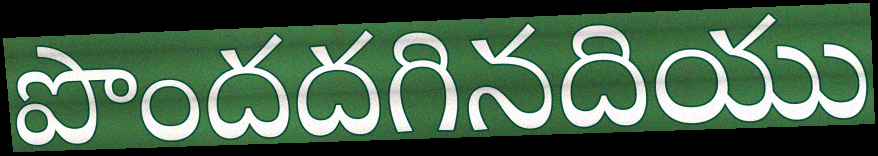
పొందదగినదియు